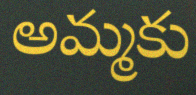
అమ్మకు